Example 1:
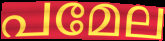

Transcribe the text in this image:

പമേല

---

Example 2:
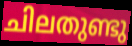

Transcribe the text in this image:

ചിലതുണ്ടു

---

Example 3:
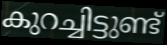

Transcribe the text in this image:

കുറച്ചിട്ടുണ്ട്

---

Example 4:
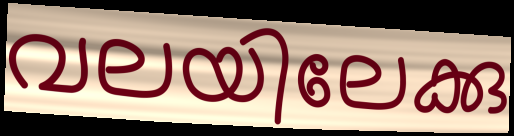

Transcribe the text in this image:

വലയിലേക്കു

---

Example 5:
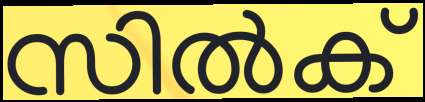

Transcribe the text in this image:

സിൽക്